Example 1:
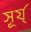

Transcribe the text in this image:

সূৰ্য্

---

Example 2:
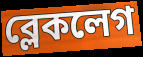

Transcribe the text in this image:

ব্লেকলেগ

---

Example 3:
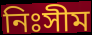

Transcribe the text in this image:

নিঃসীম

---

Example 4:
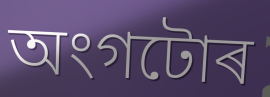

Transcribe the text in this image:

অংগটোৰ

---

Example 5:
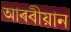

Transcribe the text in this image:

আৰবীয়ান